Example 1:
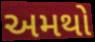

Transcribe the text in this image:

અમથો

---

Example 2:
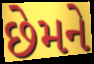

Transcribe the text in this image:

છેમને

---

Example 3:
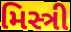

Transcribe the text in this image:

મિસ્ત્રી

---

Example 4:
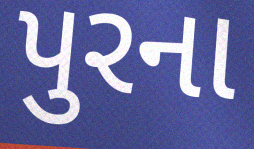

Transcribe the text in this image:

પુરના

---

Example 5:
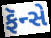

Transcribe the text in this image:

ફૅન્સે